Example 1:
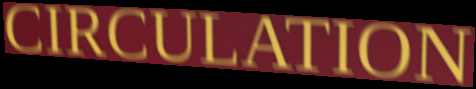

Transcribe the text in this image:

CIRCULATION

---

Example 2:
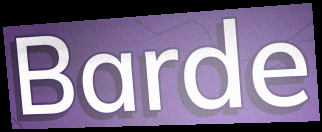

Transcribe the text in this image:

Barde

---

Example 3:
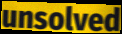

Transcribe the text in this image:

unsolved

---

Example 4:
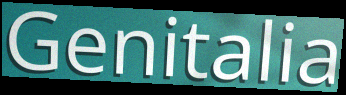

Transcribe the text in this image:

Genitalia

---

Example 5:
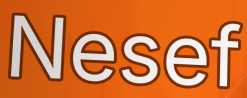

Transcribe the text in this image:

Nesef